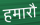
हमारौ